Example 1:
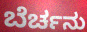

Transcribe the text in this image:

ಬೆರ್ಚನು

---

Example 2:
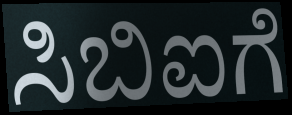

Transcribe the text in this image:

ಸಿಬಿಐಗೆ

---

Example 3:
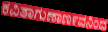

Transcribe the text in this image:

ಕವಿತಾಗುಣಾರ್ಣವನಿಂದ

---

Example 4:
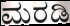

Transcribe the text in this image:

ಮರಡಿ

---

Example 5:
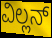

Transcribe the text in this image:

ವಿಲ್ಲನ್